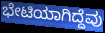
ಭೇಟಿಯಾಗಿದ್ದೆವು